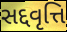
સદ્દવૃત્તિ